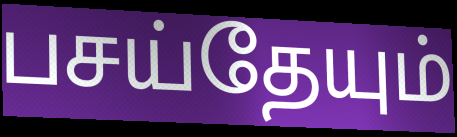
பசய்தேயும்